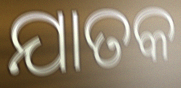
ଯାତକ